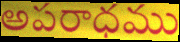
అపరాధము